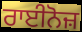
ਰਾਈਨੋਜ਼